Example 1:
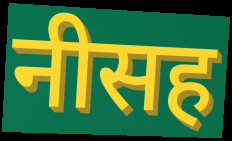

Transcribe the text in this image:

नीसह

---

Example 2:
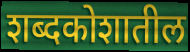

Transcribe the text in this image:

शब्दकोशातील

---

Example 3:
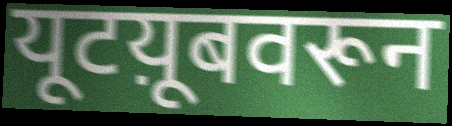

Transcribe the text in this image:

यूटय़ूबवरून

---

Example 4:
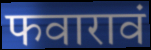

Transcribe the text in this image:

फवारावं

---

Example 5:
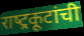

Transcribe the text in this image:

राष्ट्रकूटांची